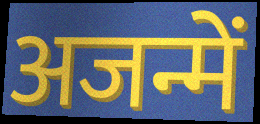
अजन्में